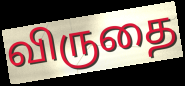
விருதை